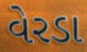
વેરડા